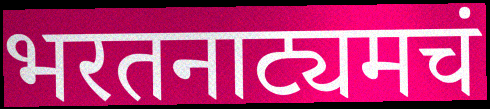
भरतनाट्यमचं